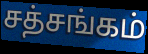
சத்சங்கம்